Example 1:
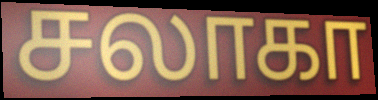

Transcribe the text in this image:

சலாகா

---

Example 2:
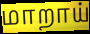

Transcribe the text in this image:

மாறாய்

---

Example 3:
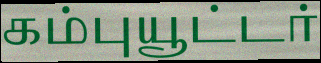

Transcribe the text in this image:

கம்புயூட்டர்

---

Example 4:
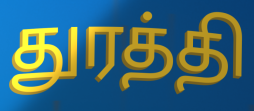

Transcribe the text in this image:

துரத்தி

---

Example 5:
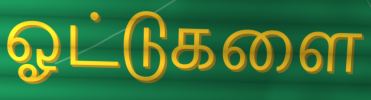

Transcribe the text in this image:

ஓட்டுகளை